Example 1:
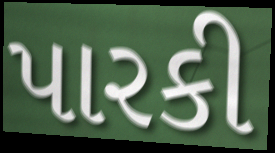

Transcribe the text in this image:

પારકી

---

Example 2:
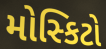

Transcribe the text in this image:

મોસ્કિટો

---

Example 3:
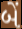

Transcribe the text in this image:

બેં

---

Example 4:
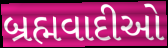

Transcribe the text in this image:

બ્રહ્મવાદીઓ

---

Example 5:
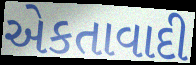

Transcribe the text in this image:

એકતાવાદી